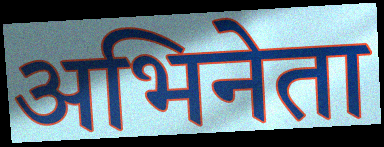
अभिनेता